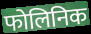
फोलिनिक